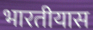
भारतीयास